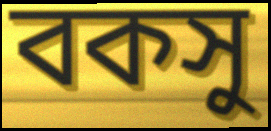
বকসু